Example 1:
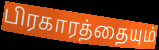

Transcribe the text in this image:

பிரகாரத்தையும்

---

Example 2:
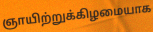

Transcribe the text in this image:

ஞாயிற்றுக்கிழமையாக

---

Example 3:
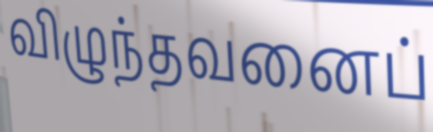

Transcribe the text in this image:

விழுந்தவனைப்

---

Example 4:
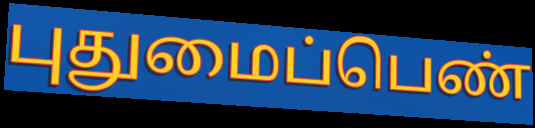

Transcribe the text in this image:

புதுமைப்பெண்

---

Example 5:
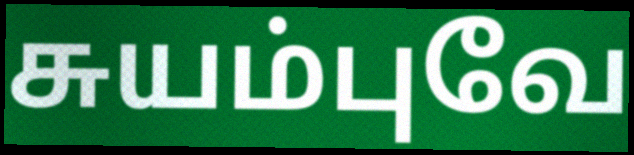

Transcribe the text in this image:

சுயம்புவே